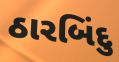
ઠારબિંદુ